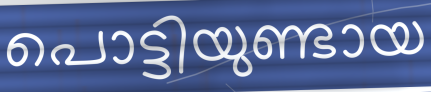
പൊട്ടിയുണ്ടായ